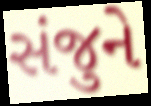
સંજુને